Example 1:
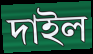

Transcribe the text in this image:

দাইল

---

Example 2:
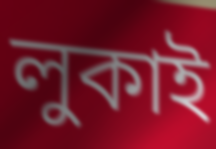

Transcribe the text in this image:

লুকাই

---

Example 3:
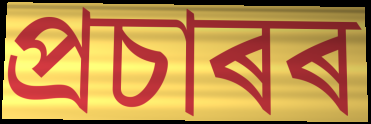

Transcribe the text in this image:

প্ৰচাৰৰ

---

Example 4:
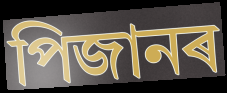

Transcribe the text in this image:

পিজানৰ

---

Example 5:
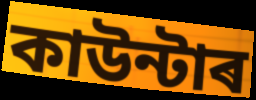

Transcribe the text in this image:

কাউন্টাৰ